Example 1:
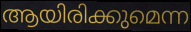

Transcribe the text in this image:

ആയിരിക്കുമെന്ന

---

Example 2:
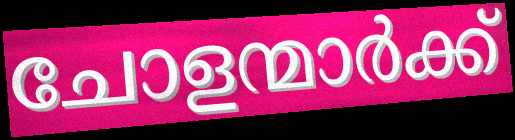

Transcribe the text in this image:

ചോളന്മാർക്ക്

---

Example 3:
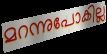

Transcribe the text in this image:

മറന്നുപോകില്ല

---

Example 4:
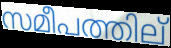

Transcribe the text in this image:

സമീപത്തില്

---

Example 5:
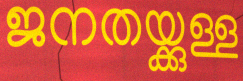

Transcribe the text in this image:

ജനതയ്ക്കുള്ള